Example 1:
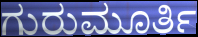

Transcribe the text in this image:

ಗುರುಮೂರ್ತಿ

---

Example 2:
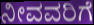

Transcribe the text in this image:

ನೀವವರಿಗೆ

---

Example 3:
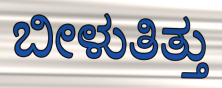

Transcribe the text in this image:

ಬೀಳುತಿತ್ತು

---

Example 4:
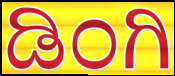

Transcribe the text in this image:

ಡಿಂಗಿ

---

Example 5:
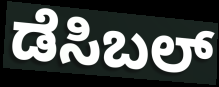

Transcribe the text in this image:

ಡೆಸಿಬಲ್